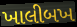
ખાલીબખ